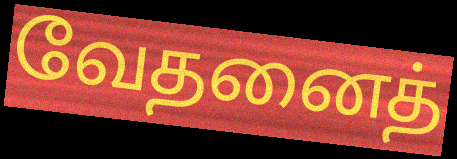
வேதனைத்